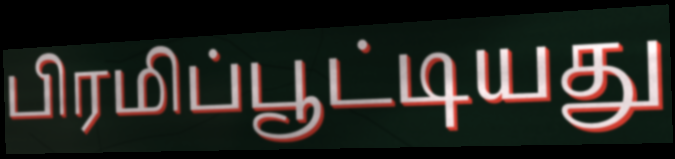
பிரமிப்பூட்டியது